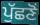
ਪੁੱਛਣੋਂ